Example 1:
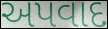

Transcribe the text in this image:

અપવાદ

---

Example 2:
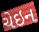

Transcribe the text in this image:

ચેઇન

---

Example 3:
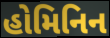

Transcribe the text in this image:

હોમિનિન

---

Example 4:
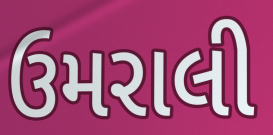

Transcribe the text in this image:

ઉમરાલી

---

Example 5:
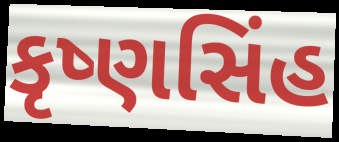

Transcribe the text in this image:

કૃષ્ણસિંહ